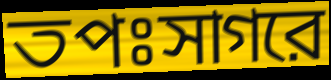
তপঃসাগরে